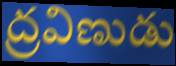
ద్రవిణుడు